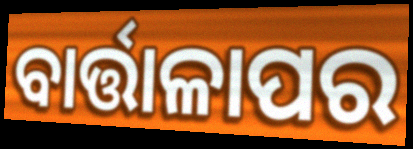
ବାର୍ତ୍ତାଳାପର